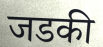
जडकी